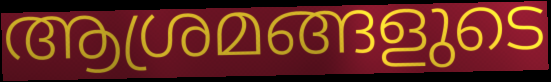
ആശ്രമങ്ങളുടെ